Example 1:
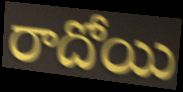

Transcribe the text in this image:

రాదోయి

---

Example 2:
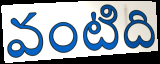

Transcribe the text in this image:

వంటిది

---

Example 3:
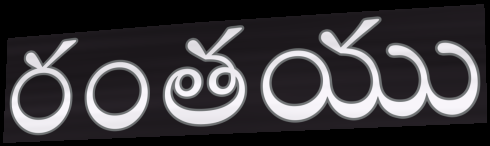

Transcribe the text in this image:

రంతయు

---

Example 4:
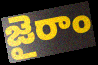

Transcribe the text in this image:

జైరాం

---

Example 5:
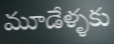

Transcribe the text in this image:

మూడేళ్ళకు